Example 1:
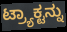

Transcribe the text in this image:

ಟ್ರ್ಯಾಕ್ಟನ್ನು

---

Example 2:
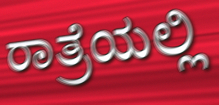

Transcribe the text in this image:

ರಾತ್ರೆಯಲ್ಲಿ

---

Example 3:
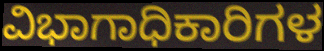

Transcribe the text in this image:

ವಿಭಾಗಾಧಿಕಾರಿಗಳ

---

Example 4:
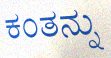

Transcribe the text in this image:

ಕಂತನ್ನು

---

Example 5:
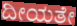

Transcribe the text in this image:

ದೀಯತೇ